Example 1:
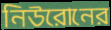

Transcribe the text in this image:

নিউরোনের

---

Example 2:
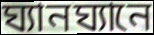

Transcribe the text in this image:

ঘ্যানঘ্যানে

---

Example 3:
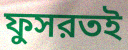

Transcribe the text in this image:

ফুসরতই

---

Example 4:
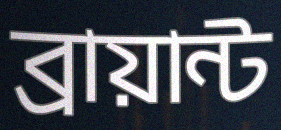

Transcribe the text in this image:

ব্রায়ান্ট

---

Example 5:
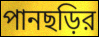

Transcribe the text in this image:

পানছড়ির